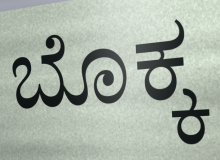
ಬೊಕ್ಕ